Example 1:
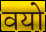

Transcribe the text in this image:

वयो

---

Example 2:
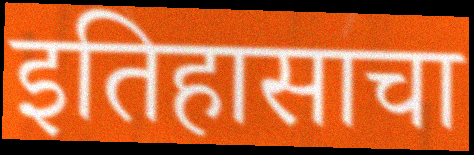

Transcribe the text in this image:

इतिहासाचा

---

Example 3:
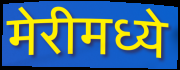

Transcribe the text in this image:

मेरीमध्ये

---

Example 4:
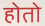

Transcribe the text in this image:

होतो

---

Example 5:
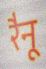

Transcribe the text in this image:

रैनू